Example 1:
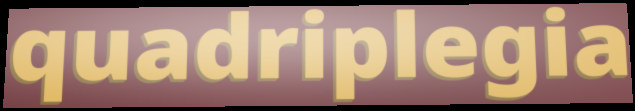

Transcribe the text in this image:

quadriplegia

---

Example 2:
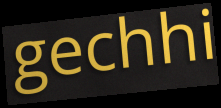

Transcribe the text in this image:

gechhi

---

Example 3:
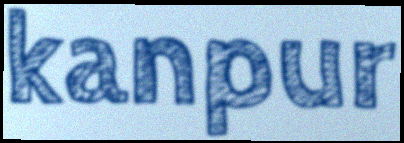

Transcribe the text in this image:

kanpur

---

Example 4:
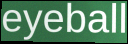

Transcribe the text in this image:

eyeball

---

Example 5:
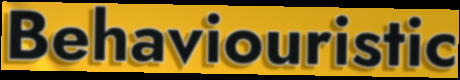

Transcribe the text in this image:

Behaviouristic